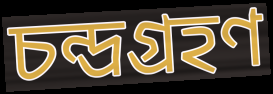
চন্দ্রগ্রহণ